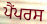
ਪੈਂਪਰਸ